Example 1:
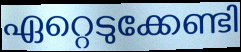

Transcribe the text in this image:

ഏറ്റെടുക്കേണ്ടി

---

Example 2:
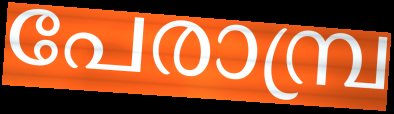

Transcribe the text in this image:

പേരാമ്പ്ര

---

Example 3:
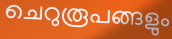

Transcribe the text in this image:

ചെറുരൂപങ്ങളും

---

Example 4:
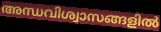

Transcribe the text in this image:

അന്ധവിശ്വാസങ്ങളിൽ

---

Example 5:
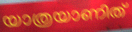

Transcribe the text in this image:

യാത്രയാണിത്